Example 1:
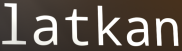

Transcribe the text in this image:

latkan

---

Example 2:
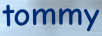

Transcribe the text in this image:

tommy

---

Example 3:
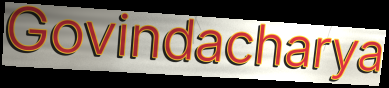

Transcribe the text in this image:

Govindacharya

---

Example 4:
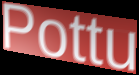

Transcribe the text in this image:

Pottu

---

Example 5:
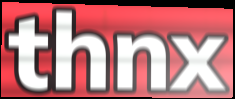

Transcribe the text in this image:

thnx